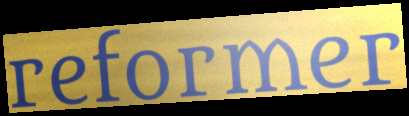
reformer